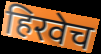
हिरवेच